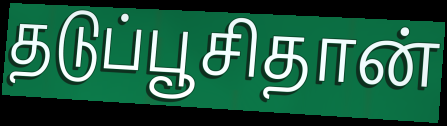
தடுப்பூசிதான்